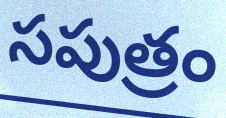
సపుత్రం